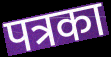
पत्रका